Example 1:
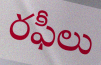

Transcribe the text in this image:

రఫీలు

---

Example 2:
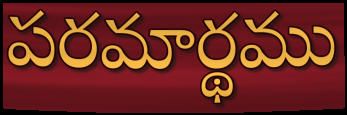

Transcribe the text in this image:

పరమార్థము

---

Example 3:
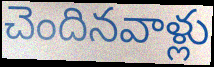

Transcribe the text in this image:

చెందినవాళ్లు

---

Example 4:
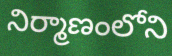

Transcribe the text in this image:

నిర్మాణంలోని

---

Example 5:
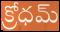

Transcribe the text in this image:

క్రోధమ్